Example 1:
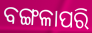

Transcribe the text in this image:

ବଙ୍ଗଳାପରି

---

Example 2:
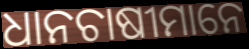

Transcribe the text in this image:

ଧାନଚାଷୀମାନେ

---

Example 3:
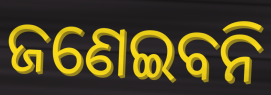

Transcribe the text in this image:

ଜଣେଇବନି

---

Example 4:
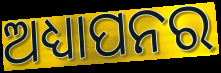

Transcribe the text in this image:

ଅଧ୍ୟାପନର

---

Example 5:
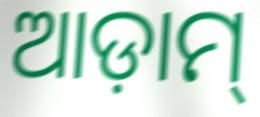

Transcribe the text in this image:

ଆଡ଼ାମ୍